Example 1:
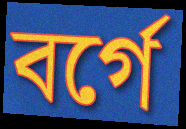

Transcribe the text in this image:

বর্গে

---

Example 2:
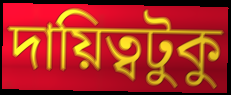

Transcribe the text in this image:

দায়িত্বটুকু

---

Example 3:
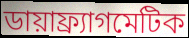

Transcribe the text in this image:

ডায়াফ্র্যাগমেটিক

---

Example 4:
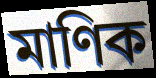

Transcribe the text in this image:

মাণিক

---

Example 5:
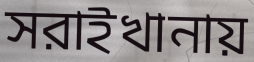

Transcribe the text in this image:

সরাইখানায়